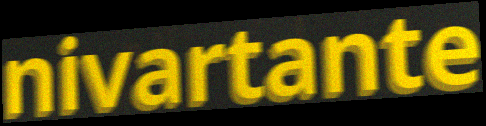
nivartante